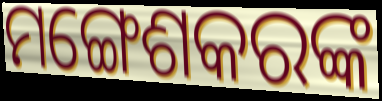
ମଙ୍ଗେଶକରଙ୍କ